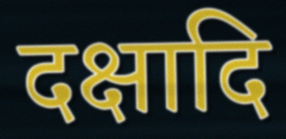
दक्षादि